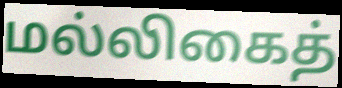
மல்லிகைத்